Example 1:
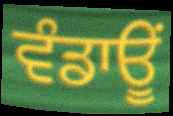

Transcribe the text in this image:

ਵੰਡਾਊਂ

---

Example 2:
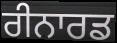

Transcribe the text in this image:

ਰੀਨਾਰਡ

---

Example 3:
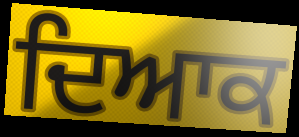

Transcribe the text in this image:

ਦਿਆਕ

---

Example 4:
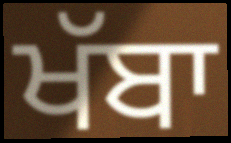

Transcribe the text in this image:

ਖੱਬਾ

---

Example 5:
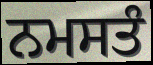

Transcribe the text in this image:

ਨਮਸਤੰ